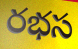
రభస